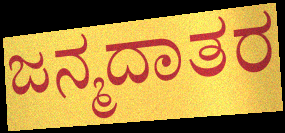
ಜನ್ಮದಾತರ